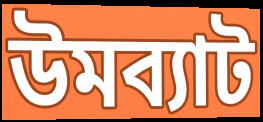
উমব্যাট